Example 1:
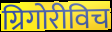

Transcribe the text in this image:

ग्रिगोरीविच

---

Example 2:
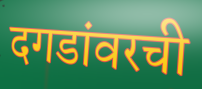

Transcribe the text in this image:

दगडांवरची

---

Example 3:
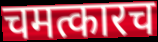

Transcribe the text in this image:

चमत्कारच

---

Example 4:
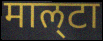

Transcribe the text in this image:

माल्टा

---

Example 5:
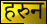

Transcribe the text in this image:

हरुन